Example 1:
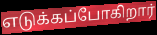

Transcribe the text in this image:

எடுக்கப்போகிறார்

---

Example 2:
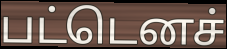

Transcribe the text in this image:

பட்டெனச்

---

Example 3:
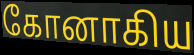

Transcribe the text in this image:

கோனாகிய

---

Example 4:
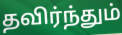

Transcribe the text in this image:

தவிர்ந்தும்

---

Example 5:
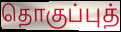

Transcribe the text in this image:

தொகுப்புத்